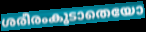
ശരീരംകൂടാതെയോ